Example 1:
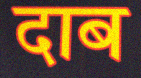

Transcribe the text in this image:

दाब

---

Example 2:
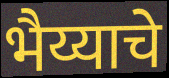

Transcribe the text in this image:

भैय्याचे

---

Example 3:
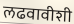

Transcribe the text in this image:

लढवावीशी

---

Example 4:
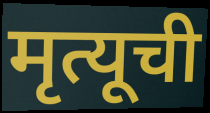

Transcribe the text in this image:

मृत्यूची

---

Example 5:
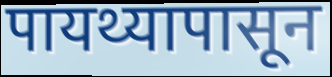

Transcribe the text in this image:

पायथ्यापासून